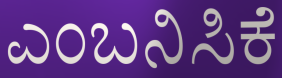
ಎಂಬನಿಸಿಕೆ